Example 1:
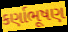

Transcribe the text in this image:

કર્ણાભૂષણ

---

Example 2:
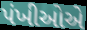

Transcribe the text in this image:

પંખીઓએ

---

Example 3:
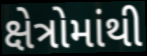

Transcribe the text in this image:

ક્ષેત્રોમાંથી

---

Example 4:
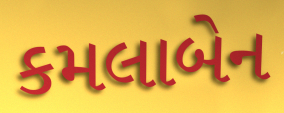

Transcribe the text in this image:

કમલાબેન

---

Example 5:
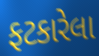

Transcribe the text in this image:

ફટકારેલા